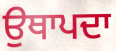
ਉਥਾਪਦਾ